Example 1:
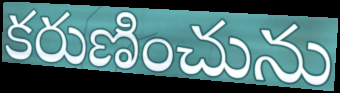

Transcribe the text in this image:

కరుణించును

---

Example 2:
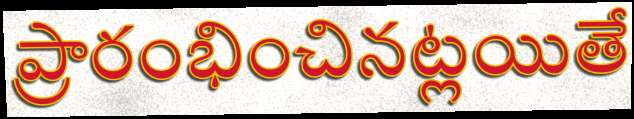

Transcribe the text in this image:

ప్రారంభించినట్లయితే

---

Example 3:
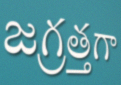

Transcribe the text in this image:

జగ్రత్తగా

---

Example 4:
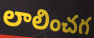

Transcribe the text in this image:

లాలించగ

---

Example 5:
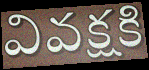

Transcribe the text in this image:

వివక్షకి